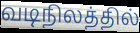
வடிநிலத்தில்